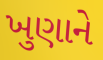
ખુણાને